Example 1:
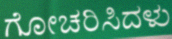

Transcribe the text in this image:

ಗೋಚರಿಸಿದಳು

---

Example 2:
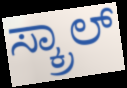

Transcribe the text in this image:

ಸ್ಕ್ರಾಲ್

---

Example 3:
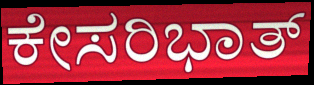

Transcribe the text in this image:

ಕೇಸರಿಭಾತ್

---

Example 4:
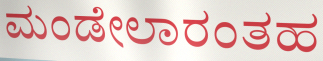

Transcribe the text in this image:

ಮಂಡೇಲಾರಂತಹ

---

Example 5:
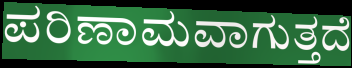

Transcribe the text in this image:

ಪರಿಣಾಮವಾಗುತ್ತದೆ